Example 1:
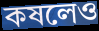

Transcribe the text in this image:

কষলেও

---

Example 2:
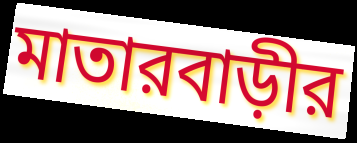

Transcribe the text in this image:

মাতারবাড়ীর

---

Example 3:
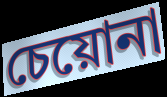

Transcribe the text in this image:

চেয়োনা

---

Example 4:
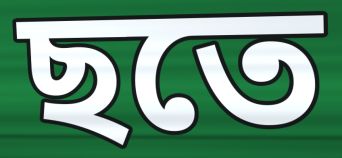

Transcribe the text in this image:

ছতে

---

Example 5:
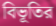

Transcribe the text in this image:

বিভূতির